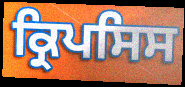
ਕ੍ਰਿਪਸਿਸ